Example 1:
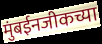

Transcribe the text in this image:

मुंबईनजीकच्या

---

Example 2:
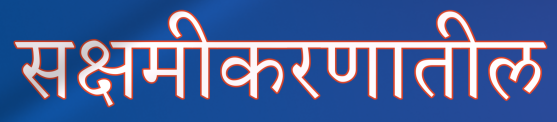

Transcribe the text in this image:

सक्षमीकरणातील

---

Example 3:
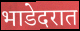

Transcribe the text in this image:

भाडेदरात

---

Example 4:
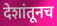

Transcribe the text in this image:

देशांतूनच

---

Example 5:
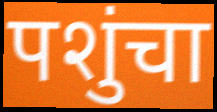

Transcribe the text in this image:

पशुंचा